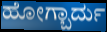
ಹೋಗ್ಬಾರ್ದು